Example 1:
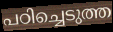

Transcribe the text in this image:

പഠിച്ചെടുത്ത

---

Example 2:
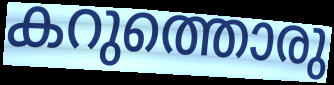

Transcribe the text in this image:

കറുത്തൊരു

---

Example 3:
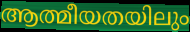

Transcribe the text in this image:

ആത്മീയതയിലും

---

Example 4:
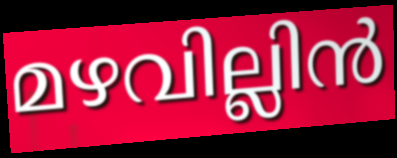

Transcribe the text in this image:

മഴവില്ലിൻ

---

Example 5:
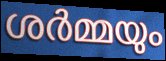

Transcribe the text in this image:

ശർമ്മയും